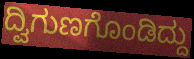
ದ್ವಿಗುಣಗೊಂಡಿದ್ದು